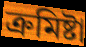
ক্ৰমিষ্টা